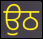
ਉਠ